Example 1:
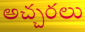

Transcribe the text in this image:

అచ్చరలు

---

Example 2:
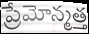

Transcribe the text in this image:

ప్రేమోన్మత్త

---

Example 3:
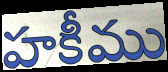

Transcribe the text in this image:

హకీము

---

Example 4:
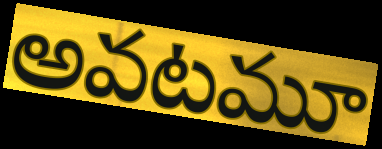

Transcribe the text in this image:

అవటమూ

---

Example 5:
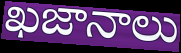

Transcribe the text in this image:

ఖజానాలు